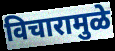
विचारामुळे